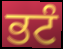
ਭਟੰ